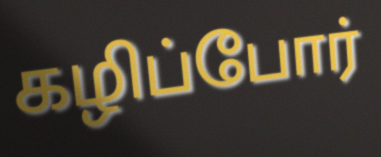
கழிப்போர்